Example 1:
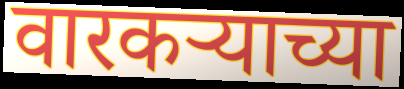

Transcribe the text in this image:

वारकऱ्याच्या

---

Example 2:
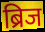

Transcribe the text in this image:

ब्रिज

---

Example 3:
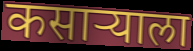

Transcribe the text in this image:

कसाऱ्याला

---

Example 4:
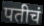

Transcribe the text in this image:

पतीचं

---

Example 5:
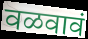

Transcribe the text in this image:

वळवावं